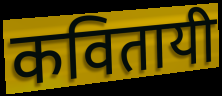
कवितायी